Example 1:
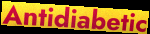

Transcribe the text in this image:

Antidiabetic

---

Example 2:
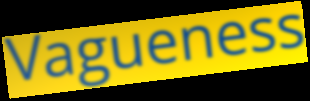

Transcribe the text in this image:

Vagueness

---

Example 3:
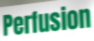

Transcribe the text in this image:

Perfusion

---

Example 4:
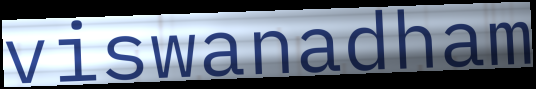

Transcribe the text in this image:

viswanadham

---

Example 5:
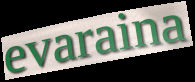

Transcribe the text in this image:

evaraina